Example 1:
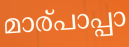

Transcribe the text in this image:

മാര്പാപ്പാ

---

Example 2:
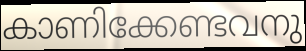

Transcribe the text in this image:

കാണിക്കേണ്ടവനു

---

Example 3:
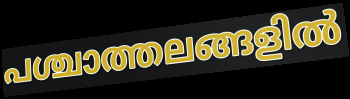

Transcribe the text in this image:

പശ്ചാത്തലങ്ങളിൽ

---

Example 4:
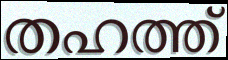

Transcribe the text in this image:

തഹത്ത്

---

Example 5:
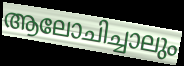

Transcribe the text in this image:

ആലോചിച്ചാലും